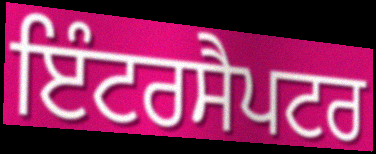
ਇੰਟਰਸੈਪਟਰ